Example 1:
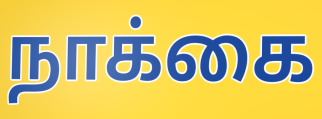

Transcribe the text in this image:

நாக்கை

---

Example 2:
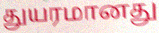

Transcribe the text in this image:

துயரமானது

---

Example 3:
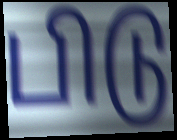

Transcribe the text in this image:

பிடு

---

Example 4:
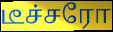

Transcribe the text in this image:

டீச்சரோ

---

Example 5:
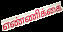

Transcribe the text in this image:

எண்ணிக்கை